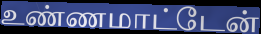
உண்ணமாட்டேன்